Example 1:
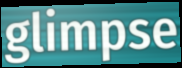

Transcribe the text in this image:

glimpse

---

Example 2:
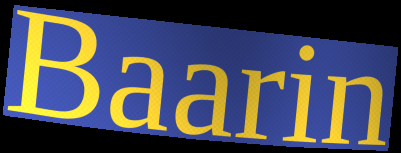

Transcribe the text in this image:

Baarin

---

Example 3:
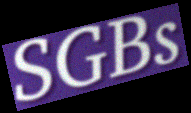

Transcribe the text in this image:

SGBs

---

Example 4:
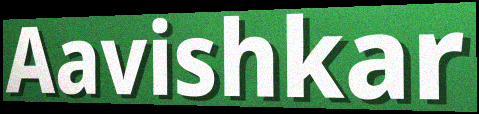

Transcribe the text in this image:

Aavishkar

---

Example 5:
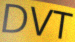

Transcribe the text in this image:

DVT